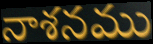
నాశనము